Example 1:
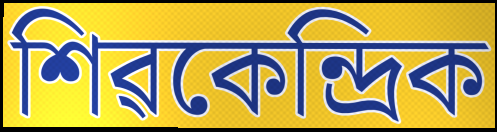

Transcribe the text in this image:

শিৱকেন্দ্ৰিক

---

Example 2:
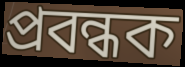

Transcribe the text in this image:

প্ৰবন্ধক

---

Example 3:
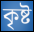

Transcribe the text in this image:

কৃষ্ট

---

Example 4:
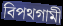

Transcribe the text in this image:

বিপথগামী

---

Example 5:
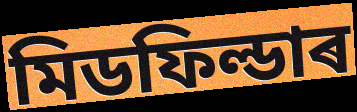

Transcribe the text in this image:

মিডফিল্ডাৰ